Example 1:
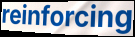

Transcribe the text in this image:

reinforcing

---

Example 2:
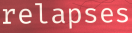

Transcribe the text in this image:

relapses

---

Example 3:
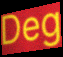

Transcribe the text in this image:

Deg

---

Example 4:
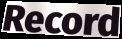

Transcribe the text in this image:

Record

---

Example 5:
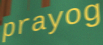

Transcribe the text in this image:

prayog